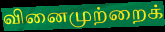
வினைமுற்றைக்